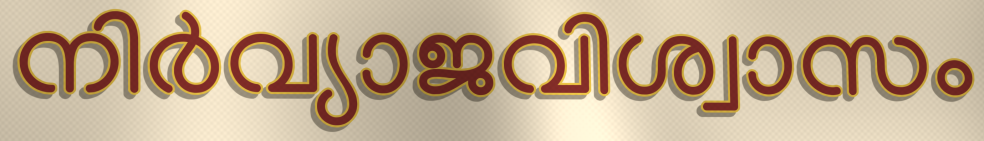
നിർവ്യാജവിശ്വാസം